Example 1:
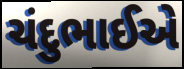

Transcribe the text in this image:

ચંદુભાઈએ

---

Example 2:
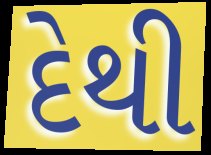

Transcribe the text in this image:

દેથી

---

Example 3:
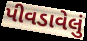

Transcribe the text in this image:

પીવડાવેલું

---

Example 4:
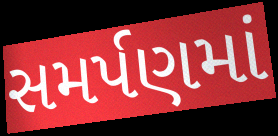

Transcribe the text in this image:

સમર્પણમાં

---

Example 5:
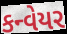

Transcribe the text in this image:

કન્વેયર